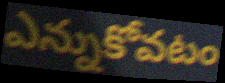
ఎన్నుకోవటం